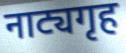
नाट्यगृह